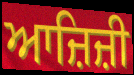
ਆਜ਼ਿਜ਼ੀ